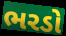
ભરડો